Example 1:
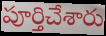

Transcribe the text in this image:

పూర్తిచేశారు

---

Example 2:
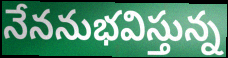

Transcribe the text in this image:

నేననుభవిస్తున్న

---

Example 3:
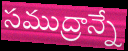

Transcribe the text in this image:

సముద్రాన్నే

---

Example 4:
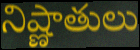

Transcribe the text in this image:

నిష్ణాతులు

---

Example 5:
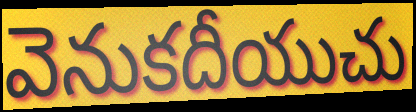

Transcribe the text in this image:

వెనుకదీయుచు